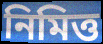
নিমিত্ত